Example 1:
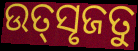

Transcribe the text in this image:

ଉତ୍‌ସୃଜତୁ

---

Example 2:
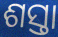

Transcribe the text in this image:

ଶସ୍ତା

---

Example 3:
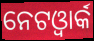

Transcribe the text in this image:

ନେଟଓ୍ବାର୍କ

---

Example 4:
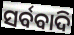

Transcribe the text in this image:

ସର୍ବବାଦି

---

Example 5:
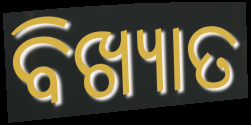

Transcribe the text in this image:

ବିଖ୍ୟାତ